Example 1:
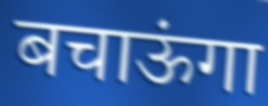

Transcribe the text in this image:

बचाऊंगा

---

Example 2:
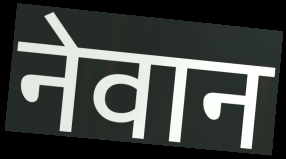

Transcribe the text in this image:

नेवान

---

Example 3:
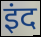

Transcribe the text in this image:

इंद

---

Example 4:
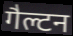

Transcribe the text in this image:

गैल्टन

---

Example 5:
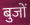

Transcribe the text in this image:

बुजों